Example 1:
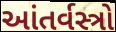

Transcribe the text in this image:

આંતર્વસ્ત્રો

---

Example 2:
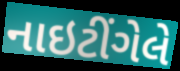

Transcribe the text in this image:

નાઇટીંગેલે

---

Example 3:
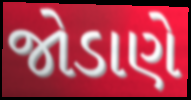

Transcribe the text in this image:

જોડાણે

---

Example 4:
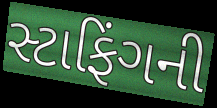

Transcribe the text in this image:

સ્ટાફિંગની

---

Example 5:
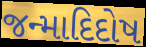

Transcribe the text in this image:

જન્માદિદોષ